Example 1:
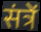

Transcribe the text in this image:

संत्रें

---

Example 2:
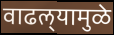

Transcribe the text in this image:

वाढल्यामुळे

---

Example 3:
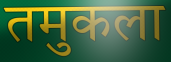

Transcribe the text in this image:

तमुकला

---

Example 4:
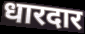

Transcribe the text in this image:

धारदार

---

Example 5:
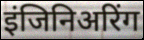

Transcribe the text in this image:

इंजिनिअरिंग